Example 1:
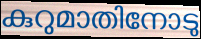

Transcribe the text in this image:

കുറുമാതിനോടു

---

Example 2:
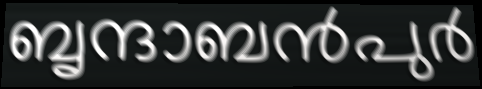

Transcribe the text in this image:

ബൃന്ദാബൻപുർ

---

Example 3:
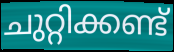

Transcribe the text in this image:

ചുറ്റിക്കണ്ട്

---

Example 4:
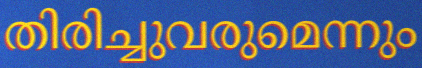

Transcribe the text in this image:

തിരിച്ചുവരുമെന്നും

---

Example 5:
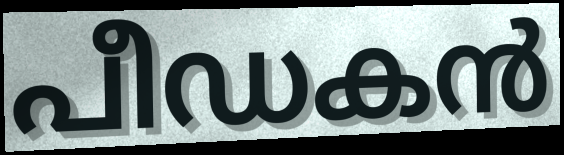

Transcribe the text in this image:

പീഡകൻ